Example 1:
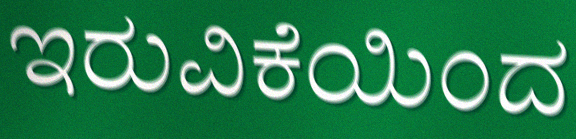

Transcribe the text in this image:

ಇರುವಿಕೆಯಿಂದ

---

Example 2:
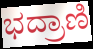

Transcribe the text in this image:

ಭದ್ರಾಣಿ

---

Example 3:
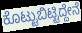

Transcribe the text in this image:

ಕೊಟ್ಟುಬಿಟ್ಟಿದ್ದೇನೆ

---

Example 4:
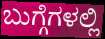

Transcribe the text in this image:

ಬುಗ್ಗೆಗಳಲ್ಲಿ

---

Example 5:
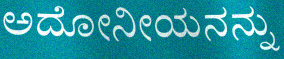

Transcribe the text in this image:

ಅದೋನೀಯನನ್ನು